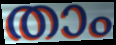
താം